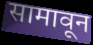
सामावून